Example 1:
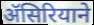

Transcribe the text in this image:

ॲसिरियाने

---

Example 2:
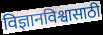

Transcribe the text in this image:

विज्ञानविश्वासाठी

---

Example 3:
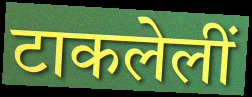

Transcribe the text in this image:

टाकलेलीं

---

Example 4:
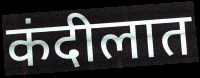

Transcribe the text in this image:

कंदीलात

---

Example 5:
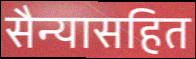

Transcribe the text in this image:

सैन्यासहित